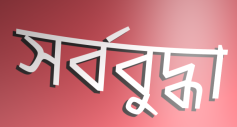
সৰ্ববুদ্ধা